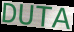
DUTA